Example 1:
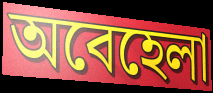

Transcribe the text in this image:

অবেহেলা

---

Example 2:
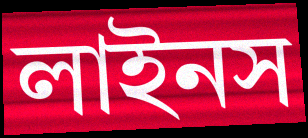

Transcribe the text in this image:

লাইনস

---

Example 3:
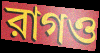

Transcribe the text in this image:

রাগও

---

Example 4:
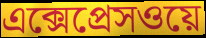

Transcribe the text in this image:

এক্সেপ্রেসওয়ে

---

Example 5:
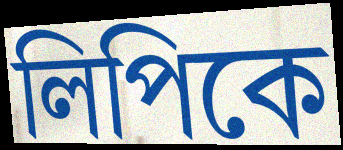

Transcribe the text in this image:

লিপিকে